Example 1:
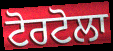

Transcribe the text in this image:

ਟੋਰਟੋਲਾ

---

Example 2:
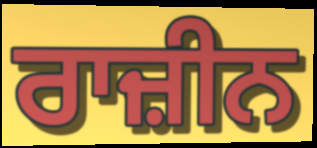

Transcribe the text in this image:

ਰਾਜ਼ੀਨ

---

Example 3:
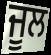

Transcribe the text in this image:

ਜੂਲ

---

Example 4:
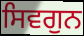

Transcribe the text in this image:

ਸਿਵਗੁਨ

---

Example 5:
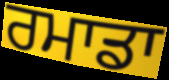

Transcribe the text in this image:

ਰਮਾਡਾ